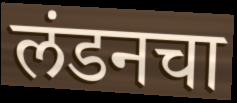
लंडनचा